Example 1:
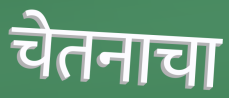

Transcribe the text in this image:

चेतनाचा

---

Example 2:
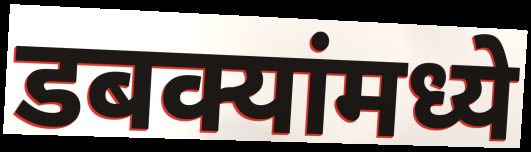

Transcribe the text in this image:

डबक्यांमध्ये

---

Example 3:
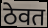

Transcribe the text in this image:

ठेवत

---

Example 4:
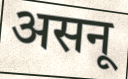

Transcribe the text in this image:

असनू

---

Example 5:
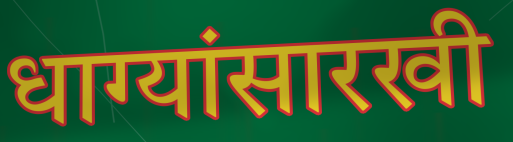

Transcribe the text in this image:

धाग्यांसारखी